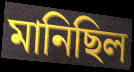
মানিছিল